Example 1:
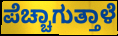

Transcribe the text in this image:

ಪೆಚ್ಚಾಗುತ್ತಾಳೆ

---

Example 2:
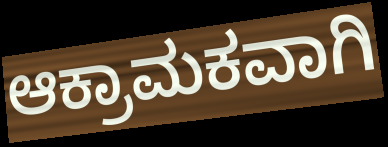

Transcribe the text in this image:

ಆಕ್ರಾಮಕವಾಗಿ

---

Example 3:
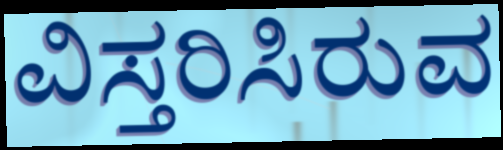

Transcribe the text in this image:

ವಿಸ್ತರಿಸಿರುವ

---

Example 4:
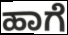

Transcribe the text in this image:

ಹಾಗೆ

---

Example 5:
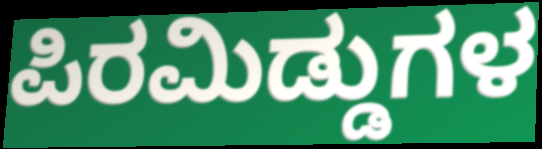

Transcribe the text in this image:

ಪಿರಮಿಡ್ಡುಗಳ